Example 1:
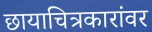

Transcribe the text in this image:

छायाचित्रकारांवर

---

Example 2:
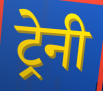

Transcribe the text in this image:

ट्रेनी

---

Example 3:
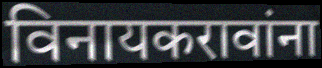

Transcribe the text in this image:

विनायकरावांना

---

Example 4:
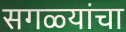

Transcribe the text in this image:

सगळ्यांचा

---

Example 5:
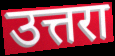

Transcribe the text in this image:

उत्तरा